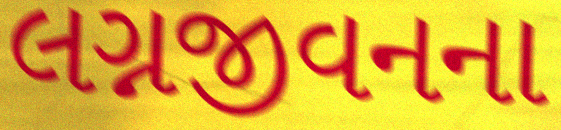
લગ્નજીવનના